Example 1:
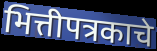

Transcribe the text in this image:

भित्तीपत्रकाचे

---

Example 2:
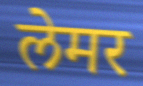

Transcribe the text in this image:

लेमर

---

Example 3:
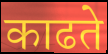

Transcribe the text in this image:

काढते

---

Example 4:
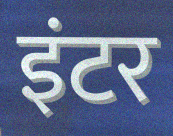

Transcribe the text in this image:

इंटर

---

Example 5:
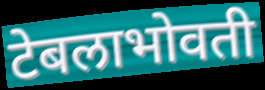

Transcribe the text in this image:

टेबलाभोवती